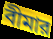
বীমার